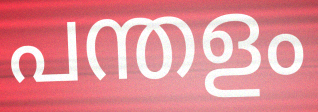
പന്തളം